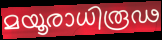
മയൂരാധിരൂഢ